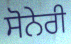
ਸੋਨੇਰੀ